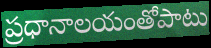
ప్రధానాలయంతోపాటు